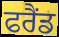
ਫਰੈਂਡ